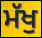
ਮੱਖੁ